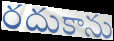
రదుకాను